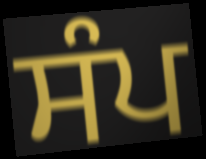
ਸੰਪ